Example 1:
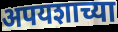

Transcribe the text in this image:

अपयशाच्या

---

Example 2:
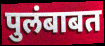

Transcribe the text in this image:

पुलंबाबत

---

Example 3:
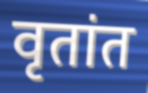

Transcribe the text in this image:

वृतांत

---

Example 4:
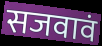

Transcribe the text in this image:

सजवावं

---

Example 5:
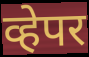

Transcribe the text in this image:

व्हेपर